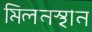
মিলনস্থান